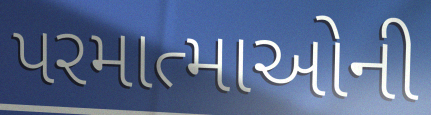
પરમાત્માઓની